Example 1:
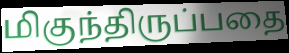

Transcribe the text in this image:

மிகுந்திருப்பதை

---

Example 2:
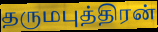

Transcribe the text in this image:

தருமபுத்திரன்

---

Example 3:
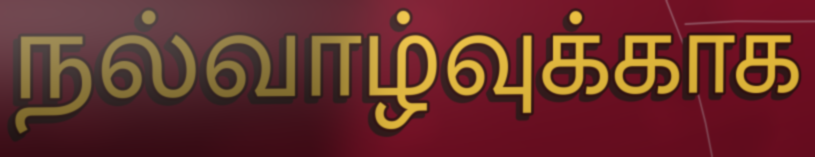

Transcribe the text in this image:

நல்வாழ்வுக்காக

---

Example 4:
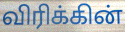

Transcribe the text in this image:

விரிக்கின்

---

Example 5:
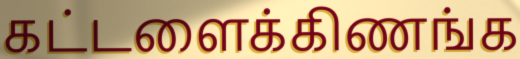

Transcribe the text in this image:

கட்டளைக்கிணங்க